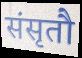
संसृतौ